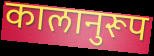
कालानुरूप